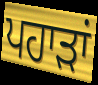
ਪਹਾੜਾਂ